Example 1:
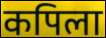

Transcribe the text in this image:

कपिला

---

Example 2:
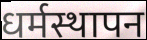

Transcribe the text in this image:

धर्मस्थापन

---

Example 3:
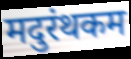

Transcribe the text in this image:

मदुरंथकम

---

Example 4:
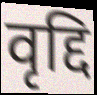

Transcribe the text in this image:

वृद्दि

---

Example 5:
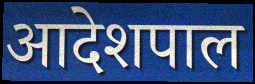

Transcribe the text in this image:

आदेशपाल